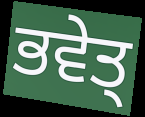
ਭਵੇਤ੍